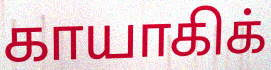
காயாகிக்